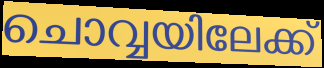
ചൊവ്വയിലേക്ക്